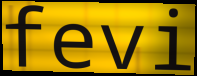
fevi